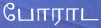
போராட